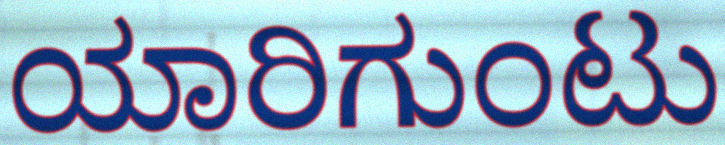
ಯಾರಿಗುಂಟು